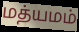
மத்யமம்